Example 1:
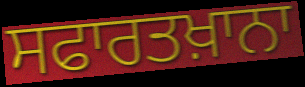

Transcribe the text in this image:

ਸਫਾਰਤਖ਼ਾਨਾ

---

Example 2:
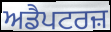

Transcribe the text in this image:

ਅਡੈਪਟਰਜ਼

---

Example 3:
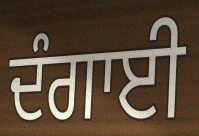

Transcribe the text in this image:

ਦੰਗਾਈ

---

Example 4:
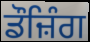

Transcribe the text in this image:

ਡੌਜ਼ਿੰਗ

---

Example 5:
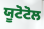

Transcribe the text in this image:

ਯੂਟੋਟੋਲ